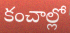
కంచాల్లో